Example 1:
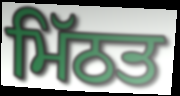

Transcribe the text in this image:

ਮਿੱਠਤ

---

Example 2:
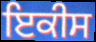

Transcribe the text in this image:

ਇਕੀਸ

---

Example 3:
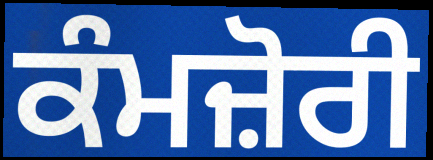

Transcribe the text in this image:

ਕੰਮਜ਼ੋਰੀ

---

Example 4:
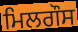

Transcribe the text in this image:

ਮਿਲਗੌਸ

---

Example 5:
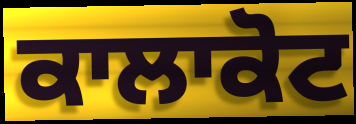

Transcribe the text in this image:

ਕਾਲਾਕੋਟ